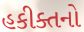
હકીક્તનો